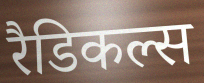
रैडिकल्स